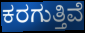
ಕರಗುತ್ತಿವೆ